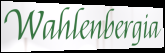
Wahlenbergia